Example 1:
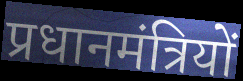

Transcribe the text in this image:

प्रधानमंत्रियों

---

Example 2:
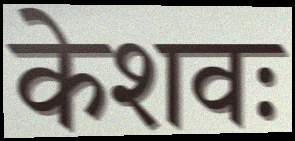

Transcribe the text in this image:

केशवः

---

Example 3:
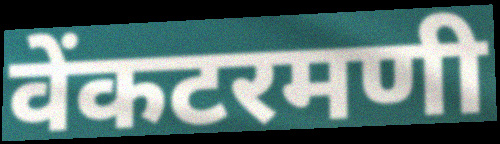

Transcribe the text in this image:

वेंकटरमणी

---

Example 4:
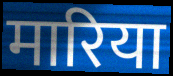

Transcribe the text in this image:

मारिया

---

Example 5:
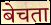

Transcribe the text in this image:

बेचता